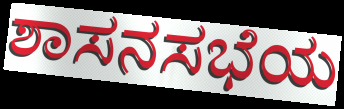
ಶಾಸನಸಭೆಯ